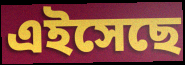
এইসেছে